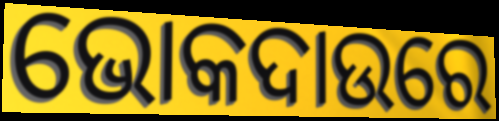
ଭୋକଦାଉରେ